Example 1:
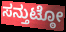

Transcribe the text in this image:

ಸನ್ತುಟ್ಠೋ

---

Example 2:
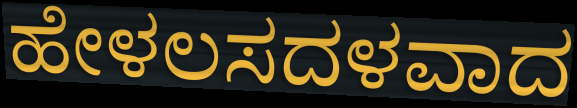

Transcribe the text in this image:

ಹೇಳಲಸದಳವಾದ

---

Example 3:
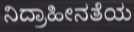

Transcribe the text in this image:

ನಿದ್ರಾಹೀನತೆಯ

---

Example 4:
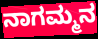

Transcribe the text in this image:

ನಾಗಮ್ಮನ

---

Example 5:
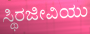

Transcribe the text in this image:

ಸ್ಥಿರಜೀವಿಯು